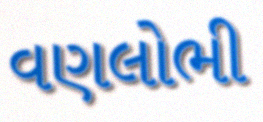
વણલોભી